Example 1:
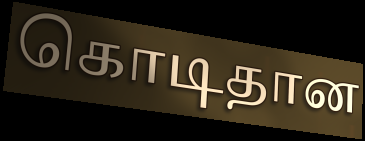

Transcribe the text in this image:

கொடிதான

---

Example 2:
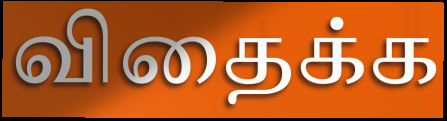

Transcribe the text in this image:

விதைக்க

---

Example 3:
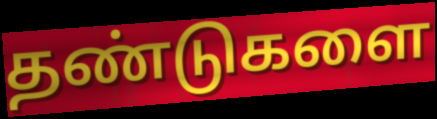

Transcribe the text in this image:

தண்டுகளை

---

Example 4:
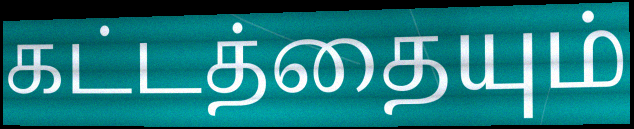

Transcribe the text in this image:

கட்டத்தையும்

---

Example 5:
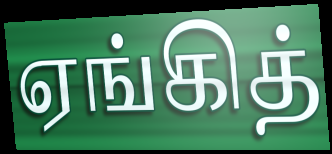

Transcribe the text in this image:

ஏங்கித்